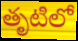
తృటిలో